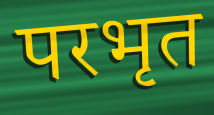
परभृत